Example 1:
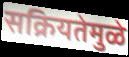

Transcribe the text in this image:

सक्रियतेमुळे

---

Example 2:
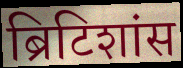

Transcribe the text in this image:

ब्रिटिशांस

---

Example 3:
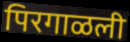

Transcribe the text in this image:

पिरगाळली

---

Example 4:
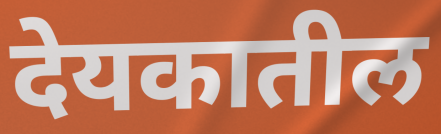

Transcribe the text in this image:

देयकातील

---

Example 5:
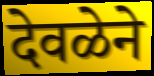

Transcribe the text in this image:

देवळेने